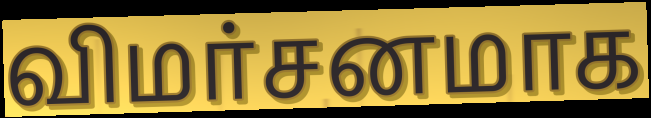
விமர்சனமாக